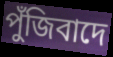
পুঁজিবাদে